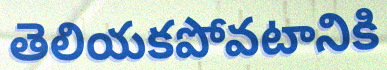
తెలియకపోవటానికి